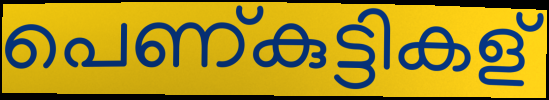
പെണ്കുട്ടികള്